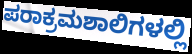
ಪರಾಕ್ರಮಶಾಲಿಗಳಲ್ಲಿ